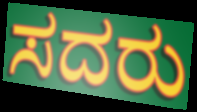
ಸದರು